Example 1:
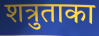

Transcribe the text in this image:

शत्रुताका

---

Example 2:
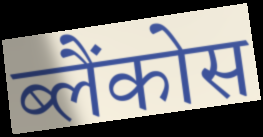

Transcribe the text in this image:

ब्लैंकोस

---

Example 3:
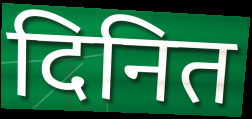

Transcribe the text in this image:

दिनित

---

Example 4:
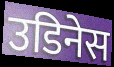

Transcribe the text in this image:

उडिनेस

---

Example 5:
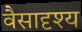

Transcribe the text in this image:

वैसादृश्य